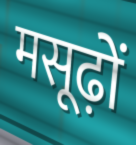
मसूढ़ों